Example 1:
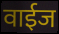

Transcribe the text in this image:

वाईज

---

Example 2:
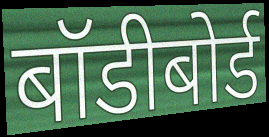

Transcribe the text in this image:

बॉडीबोर्ड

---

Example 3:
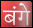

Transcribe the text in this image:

बंगे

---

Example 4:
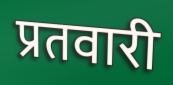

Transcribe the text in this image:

प्रतवारी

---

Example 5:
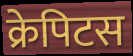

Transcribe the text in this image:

क्रेपिटस